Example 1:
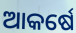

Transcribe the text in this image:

ଆକର୍ଷେ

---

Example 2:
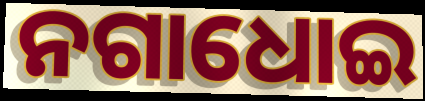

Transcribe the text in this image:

ନଗାଧୋଇ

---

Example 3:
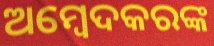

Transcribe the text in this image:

ଅମ୍ବେଦକରଙ୍କ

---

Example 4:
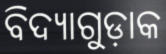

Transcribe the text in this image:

ବିଦ୍ୟାଗୁଡ଼ାକ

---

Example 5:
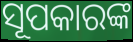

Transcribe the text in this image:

ସୂପକାରଙ୍କ